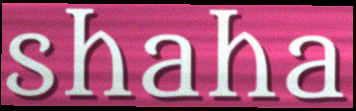
shaha